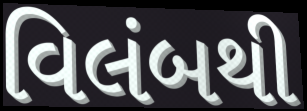
વિલંબથી